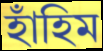
হাঁহিম